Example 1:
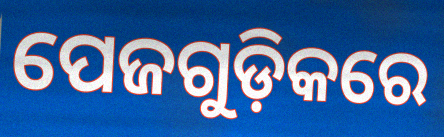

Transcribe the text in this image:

ପେଜଗୁଡ଼ିକରେ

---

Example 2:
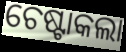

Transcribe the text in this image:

ଚେଷ୍ଟାକଲା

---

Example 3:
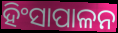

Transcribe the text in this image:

ହିଂସାପାଳନ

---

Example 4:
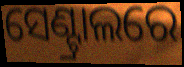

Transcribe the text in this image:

ସେଣ୍ଟ୍ରାଲରେ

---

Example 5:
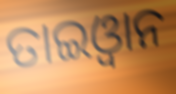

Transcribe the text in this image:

ତାଇଓ୍ୱାନ